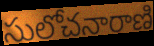
సులోచనారాణి